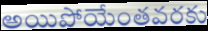
అయిపోయేంతవరకు